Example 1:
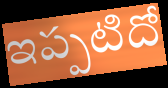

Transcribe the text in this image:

ఇప్పటిదో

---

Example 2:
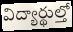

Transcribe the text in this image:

విద్యార్థుల్తో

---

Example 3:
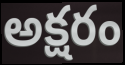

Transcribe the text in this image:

అక్షరం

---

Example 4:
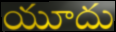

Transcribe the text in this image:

యూదు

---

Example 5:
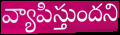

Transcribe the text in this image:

వ్యాపిస్తుందని